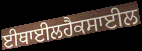
ਈਥਾਈਲਹੈਕਸਾਈਲ